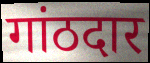
गांठदार